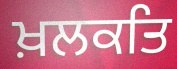
ਖ਼ਲਕਤਿ